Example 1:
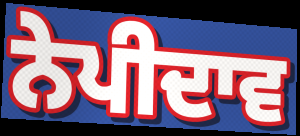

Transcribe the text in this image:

ਨੇਪੀਦਾਵ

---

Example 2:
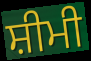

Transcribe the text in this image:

ਸ਼ੀਮੀ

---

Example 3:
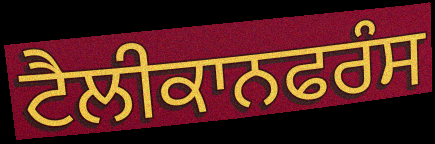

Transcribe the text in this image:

ਟੈਲੀਕਾਨਫਰੰਸ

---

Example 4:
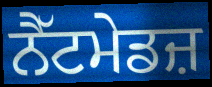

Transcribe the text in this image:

ਨੈੱਟਮੇਡਜ਼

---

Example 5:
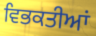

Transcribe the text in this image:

ਵਿਭਕਤੀਆਂ